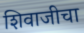
शिवाजीचा